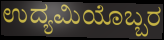
ಉದ್ಯಮಿಯೊಬ್ಬರ